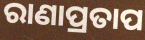
ରାଣାପ୍ରତାପ